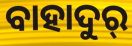
ବାହାଦୁର୍